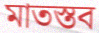
মাতস্তব